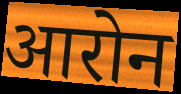
आरोन